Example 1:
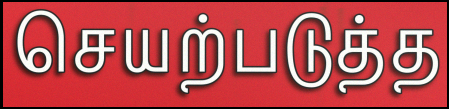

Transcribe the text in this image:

செயற்படுத்த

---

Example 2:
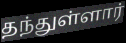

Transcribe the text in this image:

தந்துள்ளார்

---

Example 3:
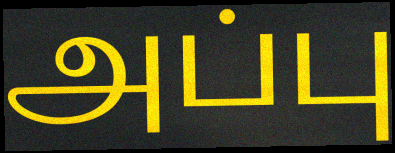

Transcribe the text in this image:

அப்பு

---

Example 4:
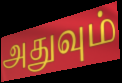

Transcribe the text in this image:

அதுவும்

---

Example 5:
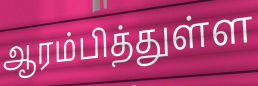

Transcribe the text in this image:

ஆரம்பித்துள்ள